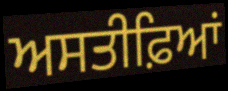
ਅਸਤੀਫ਼ਿਆਂ